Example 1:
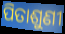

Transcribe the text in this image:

ପିତାଶୁଣୀ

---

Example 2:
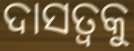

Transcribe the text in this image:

ଦାସତ୍ୱକୁ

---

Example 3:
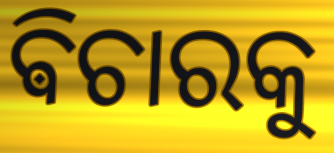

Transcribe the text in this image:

ଵିଚାରକୁ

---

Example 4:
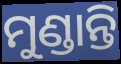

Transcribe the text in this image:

ମୁଣ୍ଡାନ୍ତି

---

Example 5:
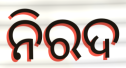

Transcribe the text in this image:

ନିରଦ